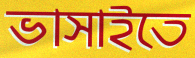
ভাসাইতে